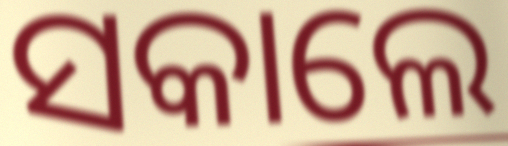
ସକାଲେ